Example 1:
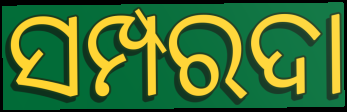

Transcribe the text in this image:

ସମ୍ପରଦା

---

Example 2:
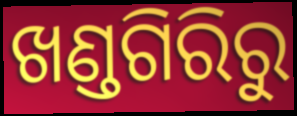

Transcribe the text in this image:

ଖଣ୍ଡଗିରିରୁ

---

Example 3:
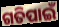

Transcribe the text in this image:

ଗତିପାଇଁ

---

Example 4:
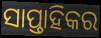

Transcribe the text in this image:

ସାପ୍ତାହିକର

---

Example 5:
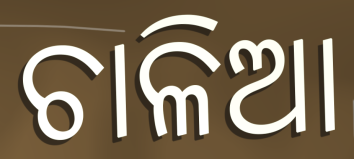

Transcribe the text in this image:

ଚାଳିଆ